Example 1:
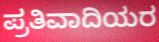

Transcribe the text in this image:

ಪ್ರತಿವಾದಿಯರ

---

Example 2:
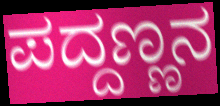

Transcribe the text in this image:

ಪದ್ದಣ್ಣನ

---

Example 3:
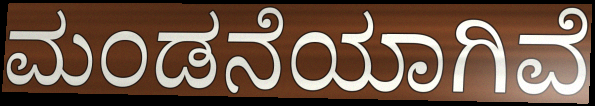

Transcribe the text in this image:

ಮಂಡನೆಯಾಗಿವೆ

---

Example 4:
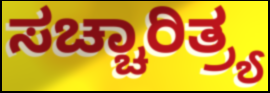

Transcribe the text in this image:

ಸಚ್ಚಾರಿತ್ರ್ಯ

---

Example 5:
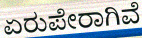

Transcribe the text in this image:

ಏರುಪೇರಾಗಿವೆ